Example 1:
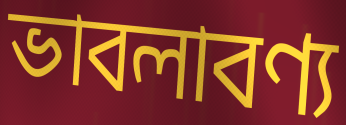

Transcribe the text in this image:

ভাবলাবণ্য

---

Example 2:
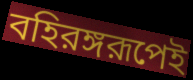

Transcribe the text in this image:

বহিরঙ্গরূপেই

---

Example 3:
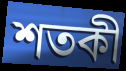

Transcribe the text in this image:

শতকী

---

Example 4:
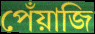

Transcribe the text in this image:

পেঁয়াজি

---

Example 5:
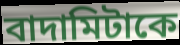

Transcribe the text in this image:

বাদামিটাকে